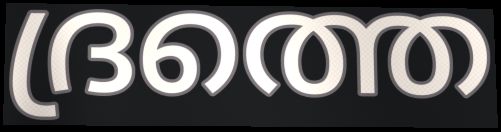
ദ്രത്തെ